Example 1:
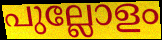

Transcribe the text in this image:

പുല്ലോളം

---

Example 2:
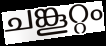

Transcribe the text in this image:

ചങ്കൂറ്റം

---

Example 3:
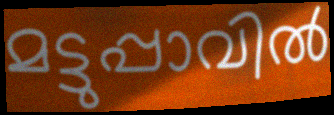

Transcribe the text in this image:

മട്ടുപ്പാവിൽ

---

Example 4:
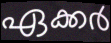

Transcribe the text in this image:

ഏക്കർ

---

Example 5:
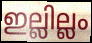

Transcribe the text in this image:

ഇല്ലില്ലം